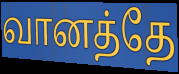
வானத்தே